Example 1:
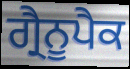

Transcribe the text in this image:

ਗ੍ਰੈਨੂਪੈਕ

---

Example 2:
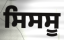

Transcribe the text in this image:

ਸਿਸਸੂ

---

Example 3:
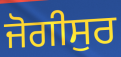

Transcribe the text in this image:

ਜੋਗੀਸੁਰ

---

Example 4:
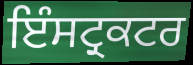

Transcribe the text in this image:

ਇੰਸਟ੍ਰਕਟਰ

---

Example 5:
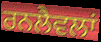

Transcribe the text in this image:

ਰਨਲੈਵਲਾਂ